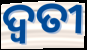
ଦ୍ଵତୀ